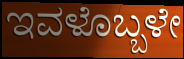
ಇವಳೊಬ್ಬಳೇ